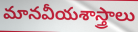
మానవీయశాస్త్రాలు